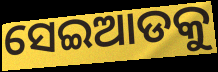
ସେଇଆଡକୁ